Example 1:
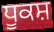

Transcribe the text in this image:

ਧੂਕਸ਼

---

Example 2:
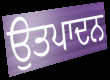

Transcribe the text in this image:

ਉਤਪਾਦਨ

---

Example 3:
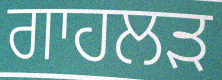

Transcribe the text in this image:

ਗਾਹਲੜ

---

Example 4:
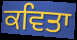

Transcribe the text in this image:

ਕਵਿਤਾ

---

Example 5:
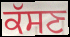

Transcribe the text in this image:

ਕੱਸਣ